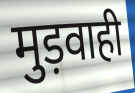
मुड़वाही